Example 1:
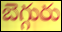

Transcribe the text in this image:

బెగ్గురు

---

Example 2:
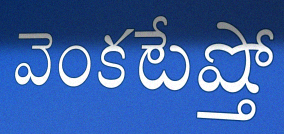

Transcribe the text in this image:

వెంకటేష్తో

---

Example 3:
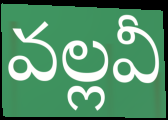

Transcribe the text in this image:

వల్లవీ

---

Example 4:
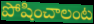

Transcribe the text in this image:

పోషించాలంట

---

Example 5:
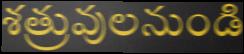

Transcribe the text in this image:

శత్రువులనుండి